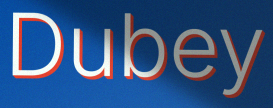
Dubey